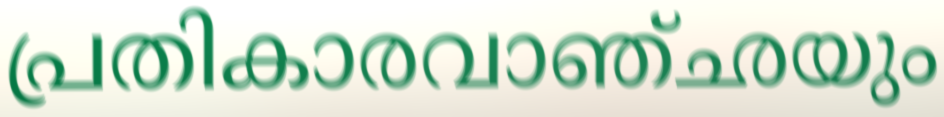
പ്രതികാരവാഞ്ഛയും